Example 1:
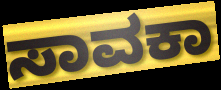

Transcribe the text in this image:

ಸಾವಕಾ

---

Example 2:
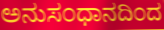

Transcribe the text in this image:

ಅನುಸಂಧಾನದಿಂದ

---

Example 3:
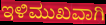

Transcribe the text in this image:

ಇಳಿಮುಖವಾಗಿ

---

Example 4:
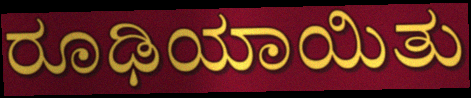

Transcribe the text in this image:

ರೂಢಿಯಾಯಿತು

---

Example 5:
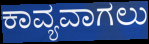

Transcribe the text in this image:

ಕಾವ್ಯವಾಗಲು